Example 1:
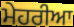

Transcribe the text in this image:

ਮੇਹਰੀਆ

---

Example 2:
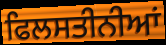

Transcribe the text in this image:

ਫਿਲਸਤੀਨੀਆਂ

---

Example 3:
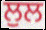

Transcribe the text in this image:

ਲੁਲ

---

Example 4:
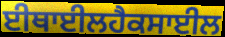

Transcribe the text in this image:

ਈਥਾਈਲਹੈਕਸਾਈਲ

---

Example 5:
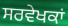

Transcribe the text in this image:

ਸਰਵੇਖਕਾਂ